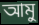
আমু